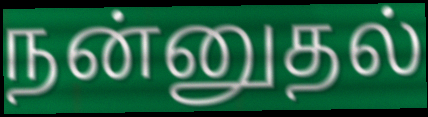
நன்னுதல்